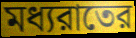
মধ্যরাতের